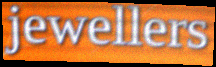
jewellers